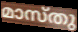
മാസ്തു